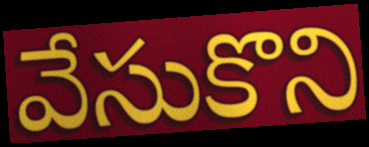
వేసుకొని